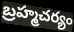
బ్రహ్మచర్యం